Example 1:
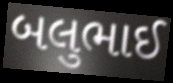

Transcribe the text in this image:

બલુભાઈ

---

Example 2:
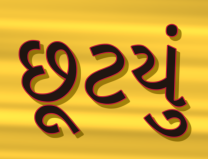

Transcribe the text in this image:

છૂટયું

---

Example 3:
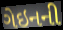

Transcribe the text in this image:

ગેઇનની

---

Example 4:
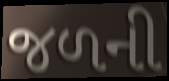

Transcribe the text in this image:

જળની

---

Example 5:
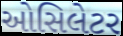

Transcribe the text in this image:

ઓસિલેટર